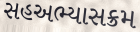
સહઅભ્યાસક્રમ